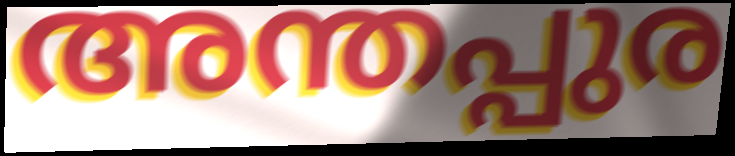
അന്തപ്പുര